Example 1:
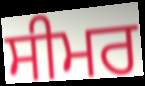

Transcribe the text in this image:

ਸੀਮਰ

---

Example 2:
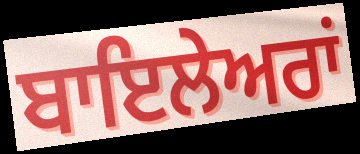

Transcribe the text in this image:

ਬਾਇਲੇਅਰਾਂ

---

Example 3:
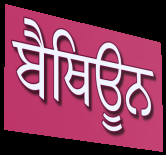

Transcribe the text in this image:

ਬੈਥਿਊਨ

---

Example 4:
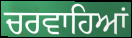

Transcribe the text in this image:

ਚਰਵਾਹਿਆਂ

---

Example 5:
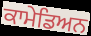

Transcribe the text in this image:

ਕਾਮੇਡਿਅਨ